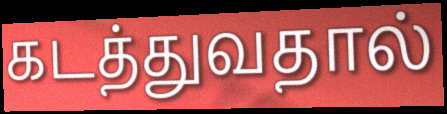
கடத்துவதால்